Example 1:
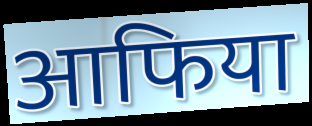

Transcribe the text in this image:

आफिया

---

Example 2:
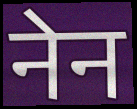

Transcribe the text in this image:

नेन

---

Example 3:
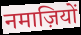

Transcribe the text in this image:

नमाज़ियों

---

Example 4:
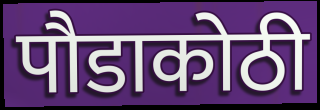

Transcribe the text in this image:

पौडाकोठी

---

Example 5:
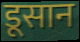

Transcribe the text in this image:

डूसान